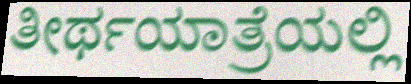
ತೀರ್ಥಯಾತ್ರೆಯಲ್ಲಿ